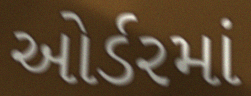
ઓર્ડરમાં